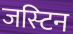
जस्‍टिन